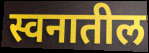
स्वनातील